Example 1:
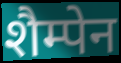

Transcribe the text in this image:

शैम्पेन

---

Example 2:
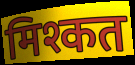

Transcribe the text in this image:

मिश्कत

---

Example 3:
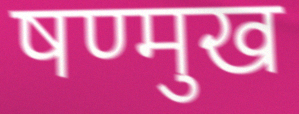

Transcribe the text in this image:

षण्मुख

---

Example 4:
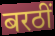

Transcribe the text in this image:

बरठीं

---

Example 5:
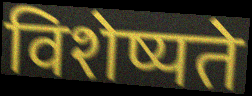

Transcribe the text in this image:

विशेष्यते